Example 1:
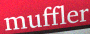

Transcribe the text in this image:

muffler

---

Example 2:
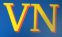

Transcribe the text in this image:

VN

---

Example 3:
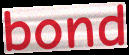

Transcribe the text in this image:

bond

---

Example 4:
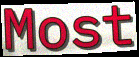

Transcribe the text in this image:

Most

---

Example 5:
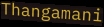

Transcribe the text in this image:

Thangamani